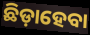
ଛିଡ଼ାହେବା